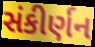
સંકીર્ણન